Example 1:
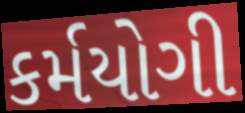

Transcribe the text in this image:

કર્મયોગી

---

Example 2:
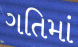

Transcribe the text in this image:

ગતિમાં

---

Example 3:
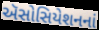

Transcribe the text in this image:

ઍસોસિયેશનનાં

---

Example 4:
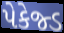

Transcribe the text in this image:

પેકેજ્ડ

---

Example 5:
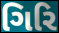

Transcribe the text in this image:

ગિરિ